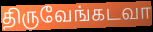
திருவேங்கடவா